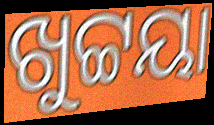
ଖୁଟ୍ଟୟା